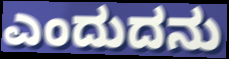
ಎಂದುದನು